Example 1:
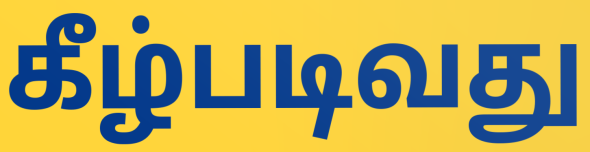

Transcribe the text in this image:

கீழ்படிவது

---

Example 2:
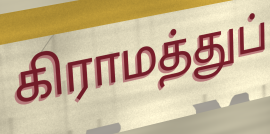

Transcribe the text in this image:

கிராமத்துப்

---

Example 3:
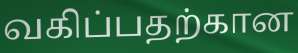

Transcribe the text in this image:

வகிப்பதற்கான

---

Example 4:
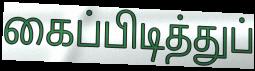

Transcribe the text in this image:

கைப்பிடித்துப்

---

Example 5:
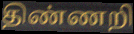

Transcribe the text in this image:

திண்ணறி